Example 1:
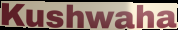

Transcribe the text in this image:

Kushwaha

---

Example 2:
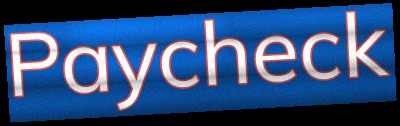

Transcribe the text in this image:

Paycheck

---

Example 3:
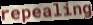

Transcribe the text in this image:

repealing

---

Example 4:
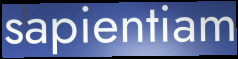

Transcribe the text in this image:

sapientiam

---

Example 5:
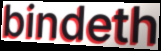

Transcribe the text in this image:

bindeth